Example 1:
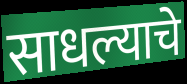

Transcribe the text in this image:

साधल्याचे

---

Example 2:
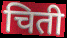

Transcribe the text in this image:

चिती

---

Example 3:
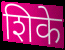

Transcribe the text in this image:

शिके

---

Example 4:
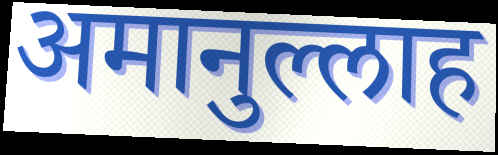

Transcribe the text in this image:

अमानुल्लाह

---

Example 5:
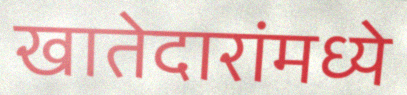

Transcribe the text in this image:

खातेदारांमध्ये